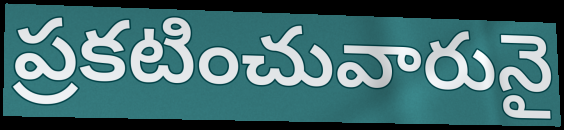
ప్రకటించువారునై